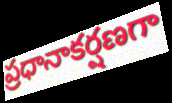
ప్రధానాకర్షణగా